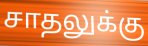
சாதலுக்கு